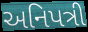
અનિપત્રી